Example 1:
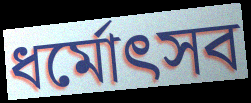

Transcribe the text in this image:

ধর্মোৎসব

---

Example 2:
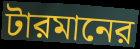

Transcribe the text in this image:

টারমানের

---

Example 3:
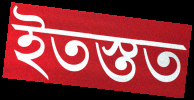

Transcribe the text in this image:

ইতস্তত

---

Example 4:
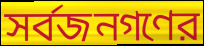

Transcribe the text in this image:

সর্বজনগণের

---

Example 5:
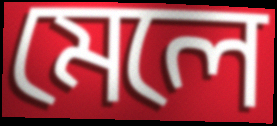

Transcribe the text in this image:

মেলে